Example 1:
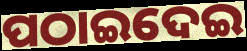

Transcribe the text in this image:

ପଠାଇଦେଇ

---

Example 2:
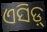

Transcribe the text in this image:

ଏସିଡ଼୍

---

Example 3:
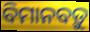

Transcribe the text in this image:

ବିମାନବଡ଼ୁ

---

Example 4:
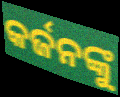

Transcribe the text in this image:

କର୍ଜନଙ୍କୁ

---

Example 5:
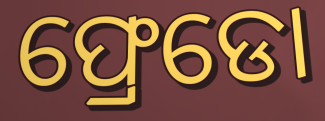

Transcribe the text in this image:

ଫ୍ରେଡୋ